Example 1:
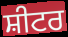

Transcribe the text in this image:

ਸ਼ੀਟਰ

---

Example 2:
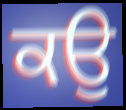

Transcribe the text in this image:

ਕਉ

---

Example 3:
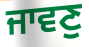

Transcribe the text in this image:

ਜਾਵਣੁ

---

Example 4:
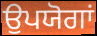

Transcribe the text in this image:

ਉਪਯੋਗਾਂ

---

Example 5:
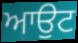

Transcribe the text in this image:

ਆਉਟ